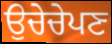
ਉਚੇਚੇਪਣ